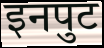
इनपुट